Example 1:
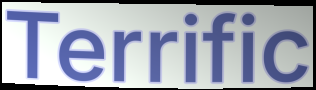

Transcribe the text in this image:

Terrific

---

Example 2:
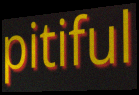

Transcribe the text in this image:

pitiful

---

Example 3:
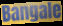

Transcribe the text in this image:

Bangale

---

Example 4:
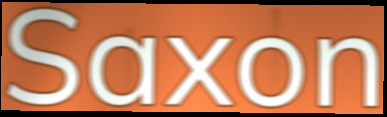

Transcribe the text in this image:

Saxon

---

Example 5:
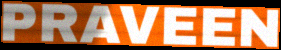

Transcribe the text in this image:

PRAVEEN